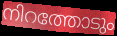
നിറത്തോടും